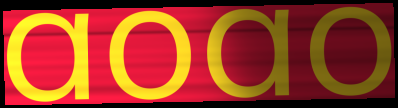
aoao